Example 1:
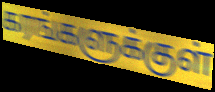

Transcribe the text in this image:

கரங்களுக்குள்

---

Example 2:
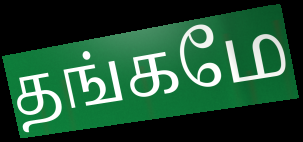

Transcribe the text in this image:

தங்கமே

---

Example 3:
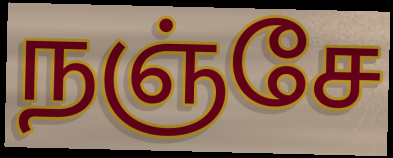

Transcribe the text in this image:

நஞ்சே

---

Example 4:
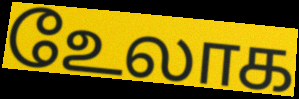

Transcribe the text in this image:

உேலாக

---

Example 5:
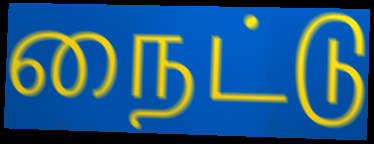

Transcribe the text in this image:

நைட்டு